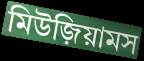
মিউজ়িয়ামস